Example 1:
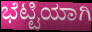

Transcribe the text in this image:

ಭೆಟ್ಟಿಯಾಗಿ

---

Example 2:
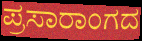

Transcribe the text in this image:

ಪ್ರಸಾರಾಂಗದ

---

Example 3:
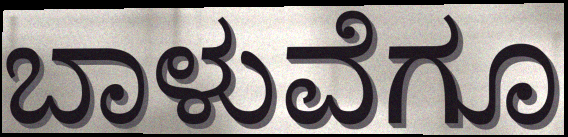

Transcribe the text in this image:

ಬಾಳುವೆಗೂ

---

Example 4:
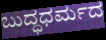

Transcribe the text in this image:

ಬುದ್ಧಧರ್ಮದ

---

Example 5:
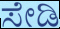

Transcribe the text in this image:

ಸೇಡಿ